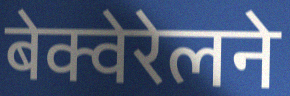
बेक्वेरेलने